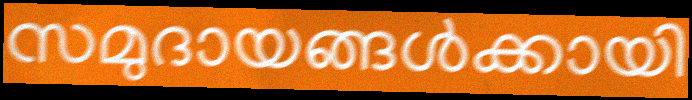
സമുദായങ്ങൾക്കായി